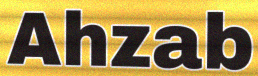
Ahzab